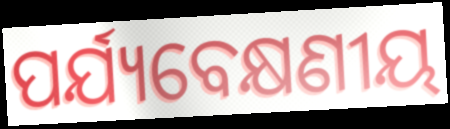
ପର୍ଯ୍ୟବେକ୍ଷଣୀୟ